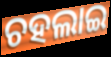
ଚହଲାଇ